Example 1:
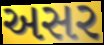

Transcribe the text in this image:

અસર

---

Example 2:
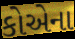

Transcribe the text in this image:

કોએના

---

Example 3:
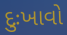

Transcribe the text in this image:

દુઃખાવો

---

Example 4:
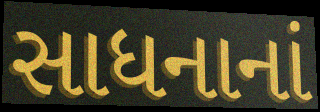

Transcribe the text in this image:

સાધનાનાં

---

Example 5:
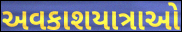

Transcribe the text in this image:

અવકાશયાત્રાઓ